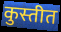
कुस्तीत